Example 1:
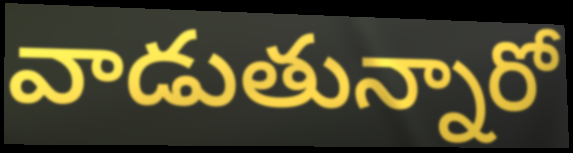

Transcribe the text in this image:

వాడుతున్నారో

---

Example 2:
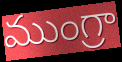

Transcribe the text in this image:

ముంగ్రా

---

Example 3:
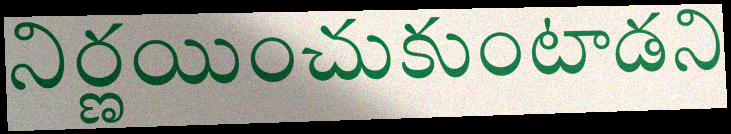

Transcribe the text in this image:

నిర్ణయించుకుంటాడని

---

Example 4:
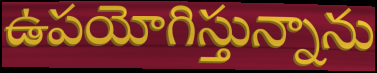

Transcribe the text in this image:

ఉపయోగిస్తున్నాను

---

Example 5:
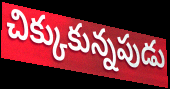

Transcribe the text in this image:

చిక్కుకున్నపుడు